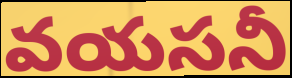
వయసనీ